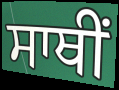
ਸਾਥੀਂ